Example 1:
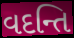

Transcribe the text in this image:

વદન્તિ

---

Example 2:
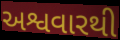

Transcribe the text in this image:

અશ્વવારથી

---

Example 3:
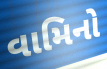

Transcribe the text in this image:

વામિનો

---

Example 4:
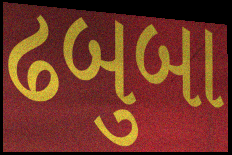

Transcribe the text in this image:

ઢબુબા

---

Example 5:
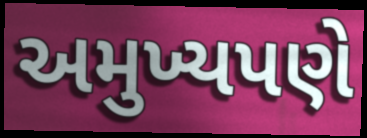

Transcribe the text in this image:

અમુખ્યપણે